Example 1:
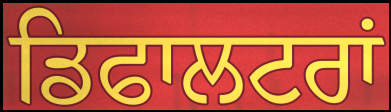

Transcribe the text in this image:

ਡਿਫਾਲਟਰਾਂ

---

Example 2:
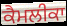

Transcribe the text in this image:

ਕੈਮਲੀਕਾ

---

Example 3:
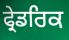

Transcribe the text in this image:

ਫ੍ਰੇਡਰਿਕ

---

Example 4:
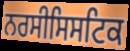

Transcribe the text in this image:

ਨਰਸੀਸਿਸਟਿਕ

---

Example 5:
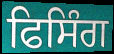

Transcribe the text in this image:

ਫਿਸਿੰਗ